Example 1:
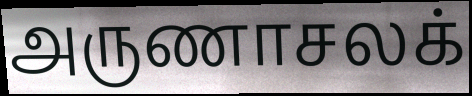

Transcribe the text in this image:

அருணாசலக்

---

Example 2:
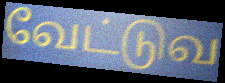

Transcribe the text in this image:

வேட்டுவ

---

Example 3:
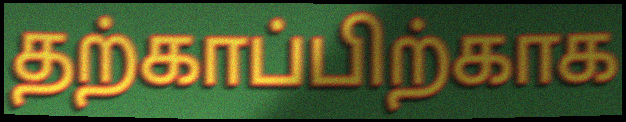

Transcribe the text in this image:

தற்காப்பிற்காக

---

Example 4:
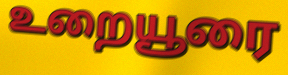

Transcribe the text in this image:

உறையூரை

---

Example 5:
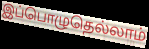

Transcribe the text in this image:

இப்பொழுதெல்லாம்